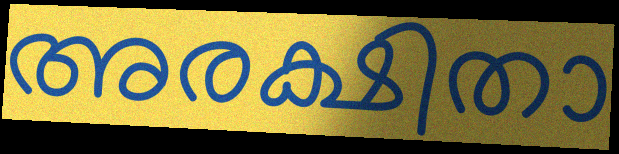
അരക്ഷിതാ